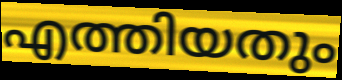
എത്തിയതും